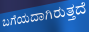
ಬಗೆಯದಾಗಿರುತ್ತದೆ